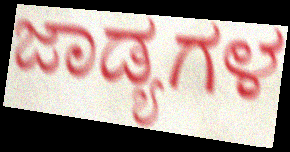
ಜಾಡ್ಯಗಳ